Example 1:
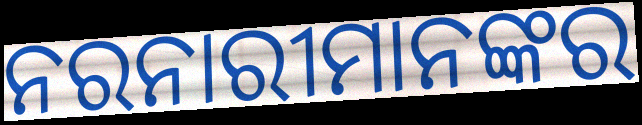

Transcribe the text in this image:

ନରନାରୀମାନଙ୍କର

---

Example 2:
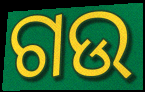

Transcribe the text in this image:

ଗଉ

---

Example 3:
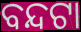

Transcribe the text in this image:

ବନ୍ଦଟା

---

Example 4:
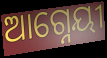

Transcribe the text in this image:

ଆଗ୍ନେୟୀ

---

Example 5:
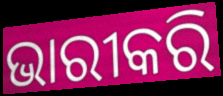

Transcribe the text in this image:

ଭାରୀକରି